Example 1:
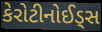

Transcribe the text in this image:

કેરોટીનોઈડ્સ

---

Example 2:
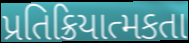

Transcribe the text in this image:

પ્રતિક્રિયાત્મકતા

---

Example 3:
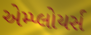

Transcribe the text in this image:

એમ્પ્લોયર્સ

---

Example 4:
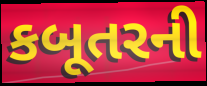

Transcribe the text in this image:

કબૂતરની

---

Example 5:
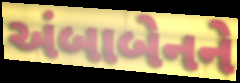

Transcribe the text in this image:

અંબાબેનને